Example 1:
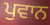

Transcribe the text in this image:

ਪੁਵਾਨ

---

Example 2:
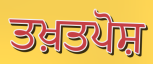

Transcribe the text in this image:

ਤਖ਼ਤਪੋਸ਼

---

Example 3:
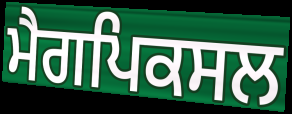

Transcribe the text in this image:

ਮੈਗਪਿਕਸਲ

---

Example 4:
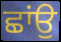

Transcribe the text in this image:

ਛਾਂਉ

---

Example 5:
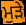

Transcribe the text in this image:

ਮੁੜੇ